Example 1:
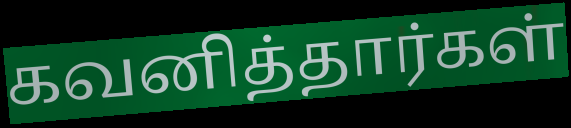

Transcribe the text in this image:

கவனித்தார்கள்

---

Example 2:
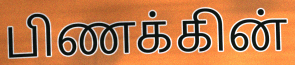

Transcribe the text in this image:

பிணக்கின்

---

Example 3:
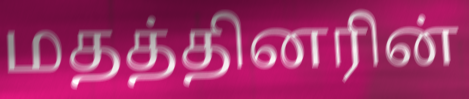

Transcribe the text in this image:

மதத்தினரின்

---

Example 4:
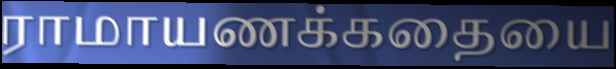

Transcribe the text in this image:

ராமாயணக்கதையை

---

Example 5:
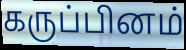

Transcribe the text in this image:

கருப்பினம்